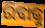
ରିବାକୁ